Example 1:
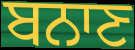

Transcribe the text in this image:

ਬਨਾਣ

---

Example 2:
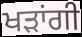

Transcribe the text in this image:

ਖੜਾਂਗੀ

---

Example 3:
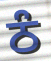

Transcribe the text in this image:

ਠੰ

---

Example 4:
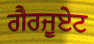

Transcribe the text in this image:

ਗੈਰਜੂਏਟ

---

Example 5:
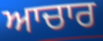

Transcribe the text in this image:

ਆਚਾਰ